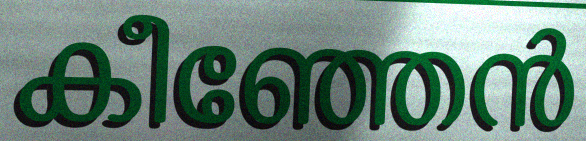
കീഞ്ഞേൻ